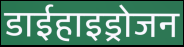
डाईहाइड्रोजन